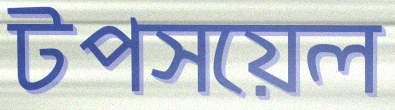
টপসয়েল